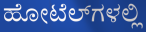
ಹೋಟೆಲ್‍ಗಳಲ್ಲಿ